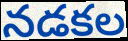
నడకల